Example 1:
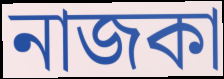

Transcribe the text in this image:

নাজকা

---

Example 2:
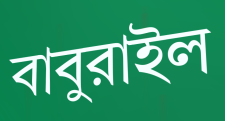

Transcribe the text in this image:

বাবুরাইল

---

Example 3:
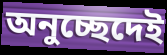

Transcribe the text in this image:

অনুচ্ছেদেই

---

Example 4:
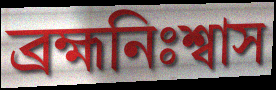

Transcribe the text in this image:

ব্রহ্মনিঃশ্বাস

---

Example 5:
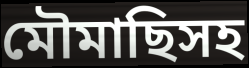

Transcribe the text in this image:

মৌমাছিসহ